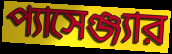
প্যাসেঞ্জ্যার